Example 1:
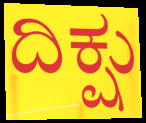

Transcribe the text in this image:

ದಿಕ್ಷು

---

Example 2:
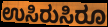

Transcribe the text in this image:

ಉಸಿರುಸಿರೂ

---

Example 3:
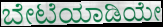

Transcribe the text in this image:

ಬೇಟೆಯಾಡಿಯೇ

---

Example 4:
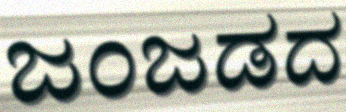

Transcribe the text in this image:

ಜಂಜಡದ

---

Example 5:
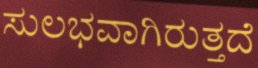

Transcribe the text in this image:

ಸುಲಭವಾಗಿರುತ್ತದೆ